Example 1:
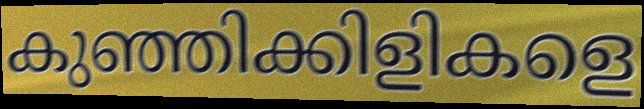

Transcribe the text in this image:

കുഞ്ഞിക്കിളികളെ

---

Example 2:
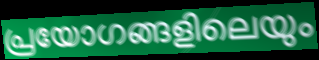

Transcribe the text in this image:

പ്രയോഗങ്ങളിലെയും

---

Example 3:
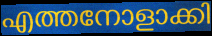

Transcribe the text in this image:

എത്തനോളാക്കി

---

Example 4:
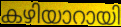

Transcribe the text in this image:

കഴിയാറായി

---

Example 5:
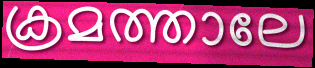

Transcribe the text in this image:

ക്രമത്താലേ